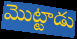
మొట్టాడు